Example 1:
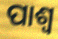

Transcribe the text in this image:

ପାଶ୍ୱ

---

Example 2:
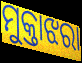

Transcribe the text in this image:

ମୁକ୍ତାଝରା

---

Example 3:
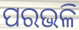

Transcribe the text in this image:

ପରଭଳି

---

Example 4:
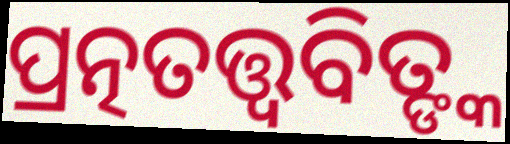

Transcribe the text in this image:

ପ୍ରତ୍ନତତ୍ତ୍ୱବିତ୍ଙ୍କ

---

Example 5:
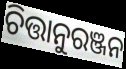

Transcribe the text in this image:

ଚିତ୍ତାନୁରଞ୍ଜନ